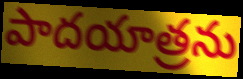
పాదయాత్రను